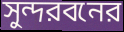
সুন্দরবনের